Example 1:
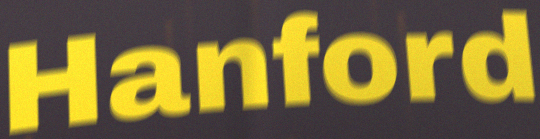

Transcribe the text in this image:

Hanford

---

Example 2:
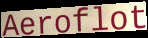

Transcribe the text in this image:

Aeroflot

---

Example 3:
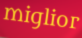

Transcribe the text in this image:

miglior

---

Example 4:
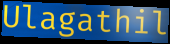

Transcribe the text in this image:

Ulagathil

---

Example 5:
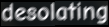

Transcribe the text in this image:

desolating